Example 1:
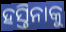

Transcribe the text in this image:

ହସ୍ତିନାକୁ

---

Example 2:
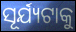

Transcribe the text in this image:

ସୂର୍ଯ୍ୟଟାକୁ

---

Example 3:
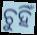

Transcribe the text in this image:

ଚୁହିଁ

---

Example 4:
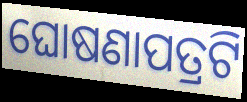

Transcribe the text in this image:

ଘୋଷଣାପତ୍ରଟି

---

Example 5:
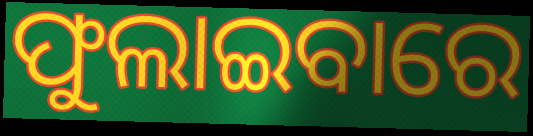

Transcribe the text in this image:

ଫୁଲାଇବାରେ